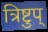
त्रिष्टुप्